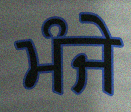
ਮੰਜੇ